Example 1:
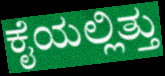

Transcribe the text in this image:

ಕೈಯಲ್ಲಿತ್ತು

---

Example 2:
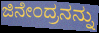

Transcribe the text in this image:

ಜಿನೇಂದ್ರನನ್ನು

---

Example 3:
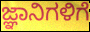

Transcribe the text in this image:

ಜ್ಞಾನಿಗಳಿಗೆ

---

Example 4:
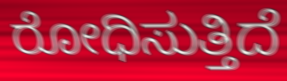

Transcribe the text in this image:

ರೋಧಿಸುತ್ತಿದೆ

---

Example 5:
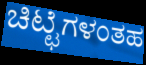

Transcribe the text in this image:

ಚಿಟ್ಟೆಗಳಂತಹ